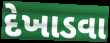
દેખાડવા